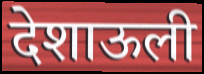
देशाऊली